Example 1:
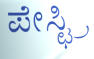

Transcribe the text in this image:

ಪೇಸ್ಟ್ರಿ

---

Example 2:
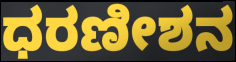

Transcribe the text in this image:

ಧರಣೀಶನ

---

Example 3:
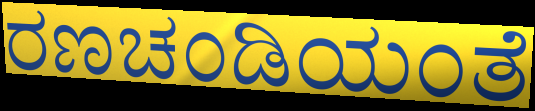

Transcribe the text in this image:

ರಣಚಂಡಿಯಂತೆ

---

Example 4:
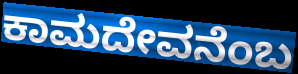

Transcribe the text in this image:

ಕಾಮದೇವನೆಂಬ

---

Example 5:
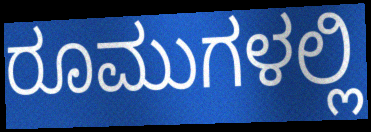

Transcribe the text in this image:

ರೂಮುಗಳಲ್ಲಿ